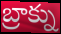
బ్రాక్ను